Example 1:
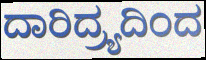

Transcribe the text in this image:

ದಾರಿದ್ರ್ಯದಿಂದ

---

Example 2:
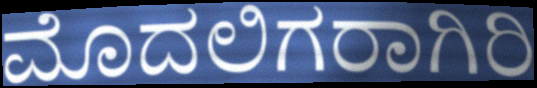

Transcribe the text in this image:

ಮೊದಲಿಗರಾಗಿರಿ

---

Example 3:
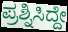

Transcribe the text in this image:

ಪ್ರಶ್ನಿಸಿದ್ದೇ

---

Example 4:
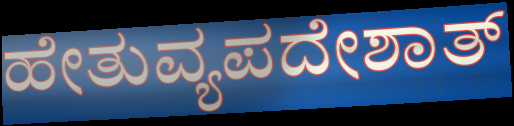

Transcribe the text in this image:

ಹೇತುವ್ಯಪದೇಶಾತ್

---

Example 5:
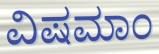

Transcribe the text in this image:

ವಿಷಮಾಂ